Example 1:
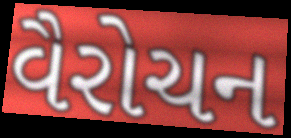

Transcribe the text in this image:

વૈરોચન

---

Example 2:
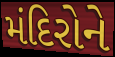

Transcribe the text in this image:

મંદિરોને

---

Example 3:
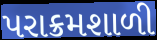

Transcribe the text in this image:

પરાક્રમશાળી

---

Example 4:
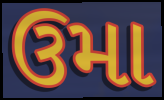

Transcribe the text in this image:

ઉમા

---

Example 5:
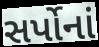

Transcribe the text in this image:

સર્પોનાં